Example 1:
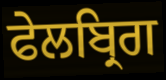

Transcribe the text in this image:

ਫੇਲਬ੍ਰਿਗ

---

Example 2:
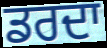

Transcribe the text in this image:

ਡਰਦਾ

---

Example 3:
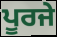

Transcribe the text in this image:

ਪੂਰਜੇ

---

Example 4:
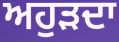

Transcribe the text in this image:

ਅਹੁੜਦਾ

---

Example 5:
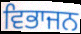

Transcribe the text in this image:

ਵਿਭਾਜਨ